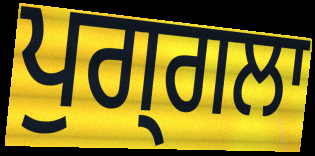
ਪੁਗ੍ਗਲਾ